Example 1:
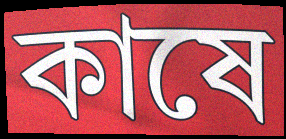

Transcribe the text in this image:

কাষে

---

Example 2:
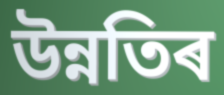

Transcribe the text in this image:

উন্নতিৰ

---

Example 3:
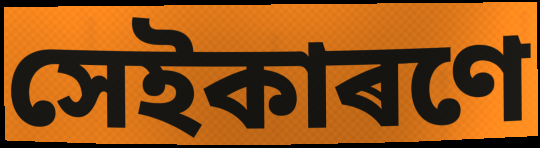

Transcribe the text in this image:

সেইকাৰণে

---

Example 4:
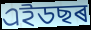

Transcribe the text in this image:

এইডছৰ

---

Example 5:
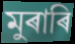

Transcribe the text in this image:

মুৰাৰি